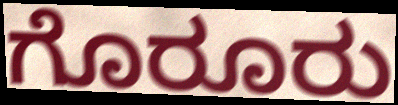
ಗೊರೂರು